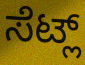
ಸೆಟ್ಲ್